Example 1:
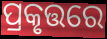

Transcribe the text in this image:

ପ୍ରକୃତ୍ତରେ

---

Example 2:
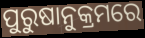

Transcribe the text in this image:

ପୁରୁଷାନୁକ୍ରମରେ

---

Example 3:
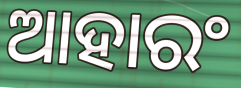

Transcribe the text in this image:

ଆହାରଂ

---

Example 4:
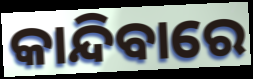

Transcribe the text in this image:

କାନ୍ଦିବାରେ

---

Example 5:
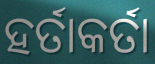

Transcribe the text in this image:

ହର୍ତାକର୍ତା